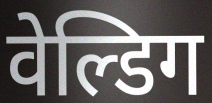
वेल्डिग